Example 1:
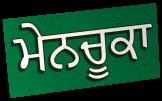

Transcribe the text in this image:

ਮੇਨਚੂਕਾ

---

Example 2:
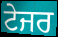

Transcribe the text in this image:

ਟੇਜਰ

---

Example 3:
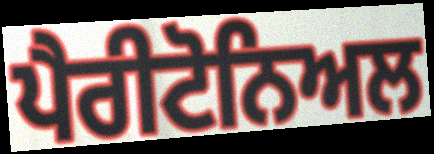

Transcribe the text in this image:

ਪੈਰੀਟੋਨਿਅਲ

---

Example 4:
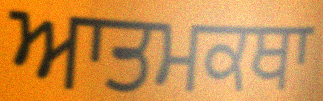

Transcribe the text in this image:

ਆਤਮਕਥਾ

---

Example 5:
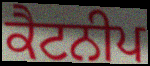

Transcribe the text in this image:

ਕੈਟਨੀਪ